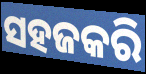
ସହଜକରି